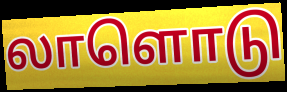
லாளொடு